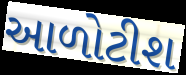
આળોટીશ